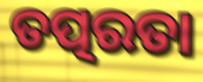
ତତ୍ପରତା